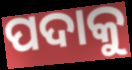
ପଦାକୁ